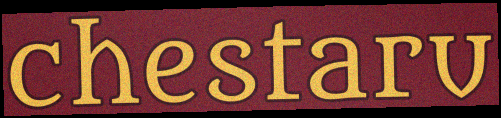
chestaru